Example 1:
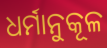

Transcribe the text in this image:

ଧର୍ମାନୁକୂଳ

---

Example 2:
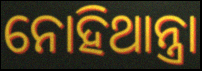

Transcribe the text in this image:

ନୋହିଥାନ୍ତ୍ରା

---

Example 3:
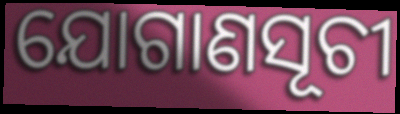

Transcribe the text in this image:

ଯୋଗାଣସୂଚୀ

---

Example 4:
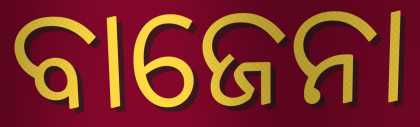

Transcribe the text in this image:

ବାଜେନା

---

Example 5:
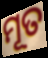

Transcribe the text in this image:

ମୂତ